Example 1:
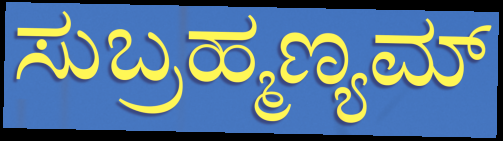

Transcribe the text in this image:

ಸುಬ್ರಹ್ಮಣ್ಯಮ್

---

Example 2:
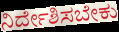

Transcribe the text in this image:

ನಿರ್ದೇಶಿಸಬೇಕು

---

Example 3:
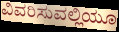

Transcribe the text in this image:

ವಿವರಿಸುವಲ್ಲಿಯೂ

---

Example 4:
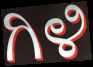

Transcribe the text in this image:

ಗಿಳಿ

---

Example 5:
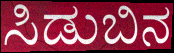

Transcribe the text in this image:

ಸಿಡುಬಿನ